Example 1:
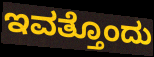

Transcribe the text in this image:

ಇವತ್ತೊಂದು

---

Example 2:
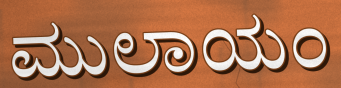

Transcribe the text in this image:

ಮುಲಾಯಂ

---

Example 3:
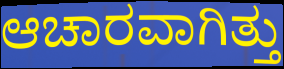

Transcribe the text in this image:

ಆಚಾರವಾಗಿತ್ತು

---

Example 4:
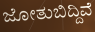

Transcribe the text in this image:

ಜೋತುಬಿದ್ದಿವೆ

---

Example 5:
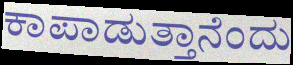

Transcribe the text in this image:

ಕಾಪಾಡುತ್ತಾನೆಂದು